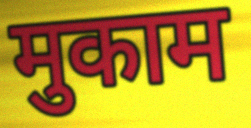
मुकाम